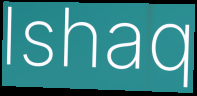
Ishaq